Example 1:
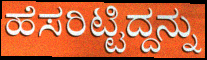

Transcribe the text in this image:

ಹೆಸರಿಟ್ಟಿದ್ದನ್ನು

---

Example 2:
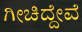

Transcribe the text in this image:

ಗೀಚಿದ್ದೇವೆ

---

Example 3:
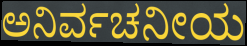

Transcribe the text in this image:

ಅನಿರ್ವಚನೀಯ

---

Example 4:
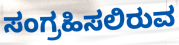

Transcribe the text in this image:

ಸಂಗ್ರಹಿಸಲಿರುವ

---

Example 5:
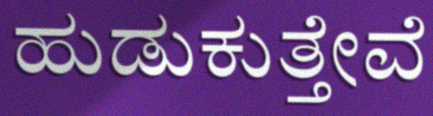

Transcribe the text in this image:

ಹುಡುಕುತ್ತೇವೆ